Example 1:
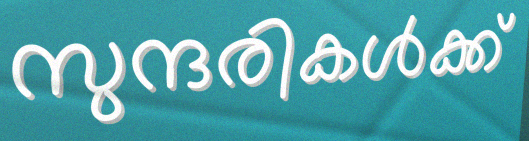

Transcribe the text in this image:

സുന്ദരികൾക്ക്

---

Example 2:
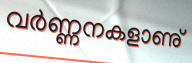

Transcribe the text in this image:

വർണ്ണനകളാണു്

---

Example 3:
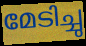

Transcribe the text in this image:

മേടിച്ചു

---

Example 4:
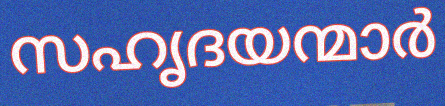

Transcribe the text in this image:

സഹൃദയന്മാർ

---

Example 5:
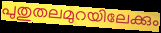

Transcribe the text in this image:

പുതുതലമുറയിലേക്കും